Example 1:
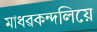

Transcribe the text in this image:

মাধৱকন্দলিয়ে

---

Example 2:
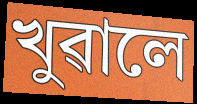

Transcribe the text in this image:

খুৱালে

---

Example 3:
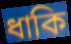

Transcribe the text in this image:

ধাকি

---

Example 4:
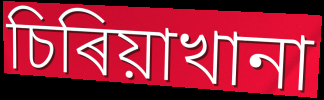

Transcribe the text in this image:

চিৰিয়াখানা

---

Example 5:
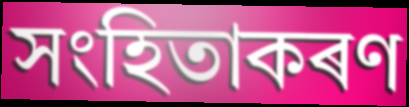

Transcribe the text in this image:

সংহিতাকৰণ